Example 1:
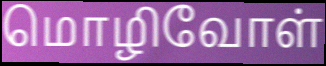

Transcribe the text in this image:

மொழிவோள்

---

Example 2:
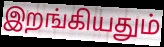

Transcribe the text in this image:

இறங்கியதும்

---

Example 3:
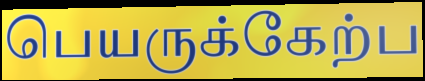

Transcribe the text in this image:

பெயருக்கேற்ப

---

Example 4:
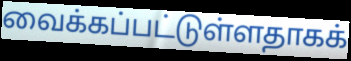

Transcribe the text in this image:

வைக்கப்பட்டுள்ளதாகக்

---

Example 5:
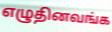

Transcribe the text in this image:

எழுதினவங்க